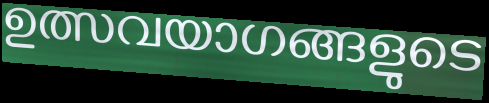
ഉത്സവയാഗങ്ങളുടെ